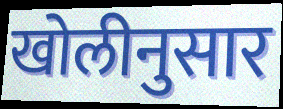
खोलीनुसार